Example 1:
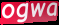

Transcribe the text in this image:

ogwa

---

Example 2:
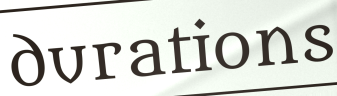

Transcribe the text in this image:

durations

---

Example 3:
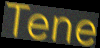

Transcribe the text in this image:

Tene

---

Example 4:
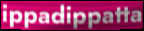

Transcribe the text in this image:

ippadippatta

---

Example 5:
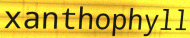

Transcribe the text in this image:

xanthophyll